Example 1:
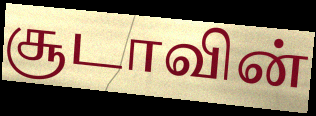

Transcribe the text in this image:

சூடாவின்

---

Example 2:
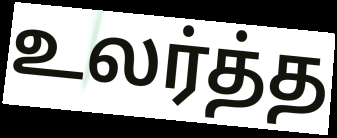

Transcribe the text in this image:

உலர்த்த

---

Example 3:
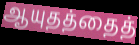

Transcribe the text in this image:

ஆயுதத்தைத்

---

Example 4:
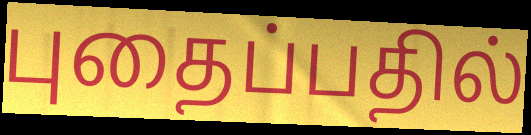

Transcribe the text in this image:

புதைப்பதில்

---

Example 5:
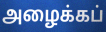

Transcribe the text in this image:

அழைக்கப்